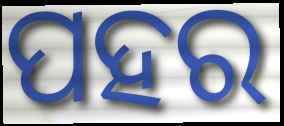
ପହର